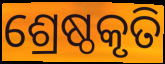
ଶ୍ରେଷ୍ଠକୃତି